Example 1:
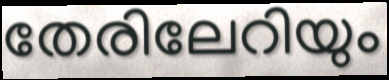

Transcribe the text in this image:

തേരിലേറിയും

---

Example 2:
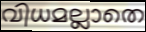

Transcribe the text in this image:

വിധമല്ലാതെ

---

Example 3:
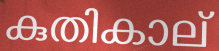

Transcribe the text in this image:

കുതികാല്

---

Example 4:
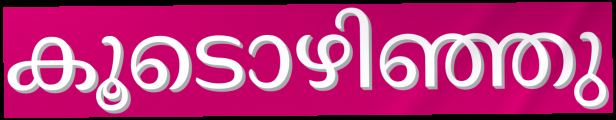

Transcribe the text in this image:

കൂടൊഴിഞ്ഞു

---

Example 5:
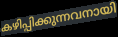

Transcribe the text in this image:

കഴിപ്പിക്കുന്നവനായി